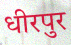
धीरपुर